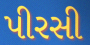
પીરસી